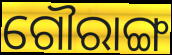
ଗୌରାଙ୍ଗ